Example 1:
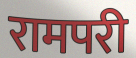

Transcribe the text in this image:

रामपरी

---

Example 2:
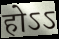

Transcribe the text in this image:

होऽऽ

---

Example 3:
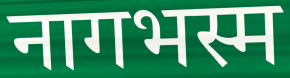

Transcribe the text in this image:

नागभस्म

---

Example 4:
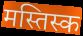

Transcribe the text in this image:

मस्तिस्क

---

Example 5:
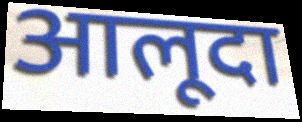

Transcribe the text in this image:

आलूदा